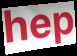
hep